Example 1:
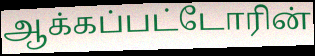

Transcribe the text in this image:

ஆக்கப்பட்டோரின்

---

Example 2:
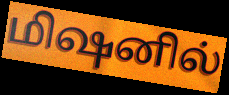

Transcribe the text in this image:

மிஷனில்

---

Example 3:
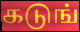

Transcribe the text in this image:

கடுங்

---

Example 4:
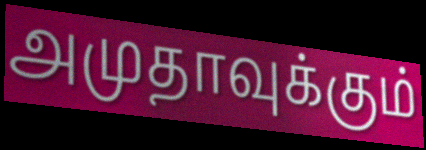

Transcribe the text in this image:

அமுதாவுக்கும்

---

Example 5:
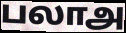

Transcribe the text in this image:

பலாஅ